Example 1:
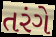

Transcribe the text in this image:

તરંગે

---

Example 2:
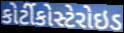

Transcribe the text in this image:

કોર્ટીકોસ્ટેરોઇડ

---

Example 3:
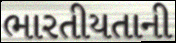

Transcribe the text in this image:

ભારતીયતાની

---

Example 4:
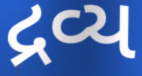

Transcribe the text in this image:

દ્રવ્ય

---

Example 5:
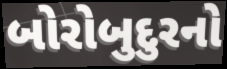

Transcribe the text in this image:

બોરોબુદુરનો